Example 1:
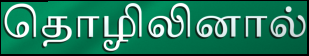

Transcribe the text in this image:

தொழிலினால்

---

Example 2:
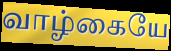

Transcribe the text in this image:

வாழ்கையே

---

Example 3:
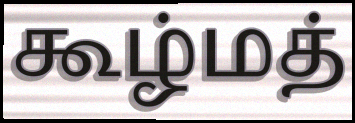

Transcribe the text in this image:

கூழ்மத்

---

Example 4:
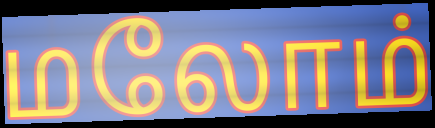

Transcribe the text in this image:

மலோம்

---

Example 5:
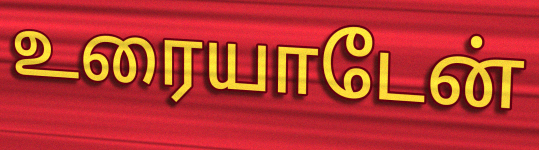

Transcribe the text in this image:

உரையாடேன்